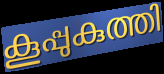
കൂപ്പുകുത്തി